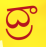
ద్రా